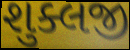
શુક્લજી